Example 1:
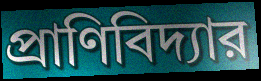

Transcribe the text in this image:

প্রাণিবিদ্যার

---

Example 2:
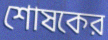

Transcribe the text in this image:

শোষকের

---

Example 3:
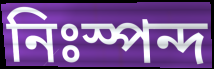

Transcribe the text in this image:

নিঃস্পন্দ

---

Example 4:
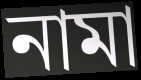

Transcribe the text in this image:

নামা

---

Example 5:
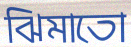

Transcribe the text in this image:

ঝিমাতো